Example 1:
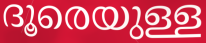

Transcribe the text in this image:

ദൂരെയുള്ള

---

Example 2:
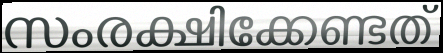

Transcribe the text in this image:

സംരക്ഷിക്കേണ്ടത്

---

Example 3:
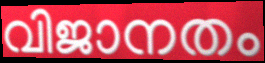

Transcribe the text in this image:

വിജാനതം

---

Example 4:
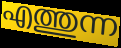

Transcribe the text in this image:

എത്തുന്ന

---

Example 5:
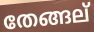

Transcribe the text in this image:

തേങ്ങല്